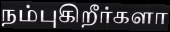
நம்புகிறீர்களா